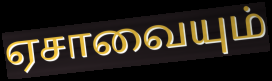
ஏசாவையும்